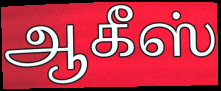
ஆகீஸ்